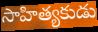
సాహిత్యకుడు